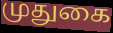
முதுகை